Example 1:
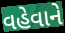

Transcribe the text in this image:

વહેવાને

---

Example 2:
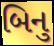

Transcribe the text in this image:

બિનુ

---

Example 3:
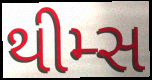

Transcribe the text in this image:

થીમ્સ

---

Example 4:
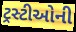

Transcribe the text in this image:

ટ્રસ્ટીઓની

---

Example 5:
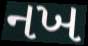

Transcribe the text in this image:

નખ